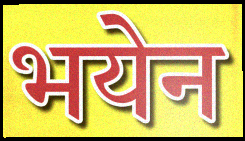
भयेन